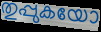
തുപ്പുകയോ